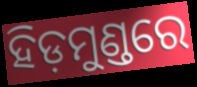
ହିଡ଼ମୁଣ୍ଡରେ